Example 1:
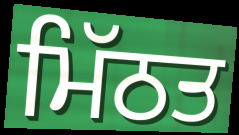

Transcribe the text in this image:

ਮਿੱਠਤ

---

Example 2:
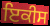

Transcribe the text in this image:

ਇਕੀਸ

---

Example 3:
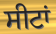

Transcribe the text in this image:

ਸੀਟਾਂ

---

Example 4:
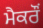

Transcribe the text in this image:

ਮੈਕਰੌਂ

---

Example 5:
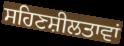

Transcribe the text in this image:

ਸਹਿਣਸ਼ੀਲਤਾਵਾਂ